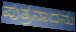
ಪುತ್ರನಾದನು